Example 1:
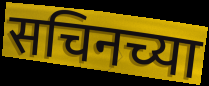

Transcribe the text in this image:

सचिनच्या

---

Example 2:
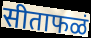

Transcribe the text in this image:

सीताफळं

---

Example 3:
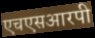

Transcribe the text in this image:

एचएसआरपी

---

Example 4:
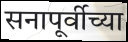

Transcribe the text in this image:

सनापूर्वीच्या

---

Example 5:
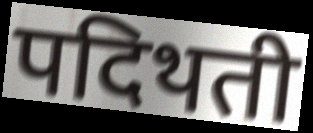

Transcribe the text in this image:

पदिथती